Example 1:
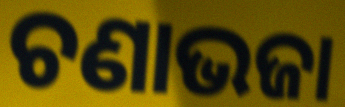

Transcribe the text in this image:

ଚଣାଭଜା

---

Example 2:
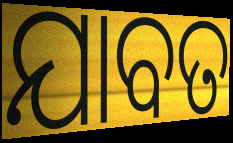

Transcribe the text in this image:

ଯାବତ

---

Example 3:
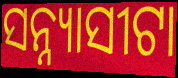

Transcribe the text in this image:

ସନ୍ନ୍ୟାସୀଟା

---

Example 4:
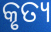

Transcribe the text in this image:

କୃତ୍ଯ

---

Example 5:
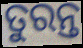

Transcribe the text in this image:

ତୁରନ୍ତ